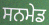
ਸਨਮੇਡ